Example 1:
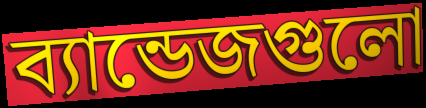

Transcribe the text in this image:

ব্যান্ডেজগুলো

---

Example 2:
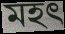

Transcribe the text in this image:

মহত্‍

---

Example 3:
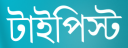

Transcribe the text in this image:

টাইপিস্ট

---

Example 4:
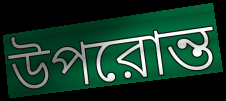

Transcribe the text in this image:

উপরোন্ত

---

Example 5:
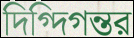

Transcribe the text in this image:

দিগ্দিগন্তর